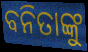
ବନିତାଙ୍କୁ